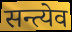
सन्त्येव